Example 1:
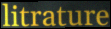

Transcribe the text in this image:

litrature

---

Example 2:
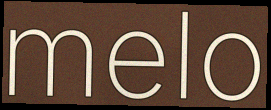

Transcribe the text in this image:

melo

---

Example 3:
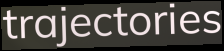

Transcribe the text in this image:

trajectories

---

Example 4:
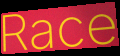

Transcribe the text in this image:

Race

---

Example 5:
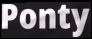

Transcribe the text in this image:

Ponty